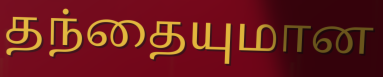
தந்தையுமான